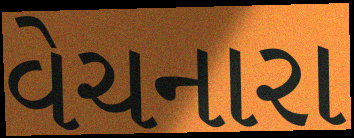
વેચનારા